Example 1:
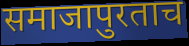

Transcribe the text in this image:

समाजापुरताच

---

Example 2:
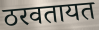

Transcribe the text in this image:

ठरवतायत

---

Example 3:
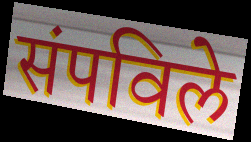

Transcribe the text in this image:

संपविले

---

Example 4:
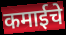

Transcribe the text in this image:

कमाईचे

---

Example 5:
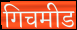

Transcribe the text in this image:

गिचमीड